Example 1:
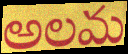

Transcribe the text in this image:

అలమ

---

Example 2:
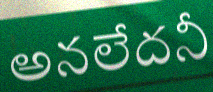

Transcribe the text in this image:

అనలేదనీ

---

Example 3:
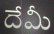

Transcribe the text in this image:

దేమీ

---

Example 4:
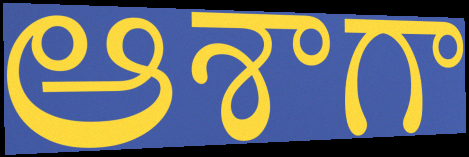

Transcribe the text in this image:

ఆశాగా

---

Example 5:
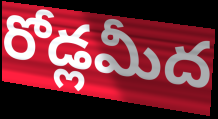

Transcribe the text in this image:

రోడ్లమీద